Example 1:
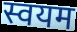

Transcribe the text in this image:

स्वयम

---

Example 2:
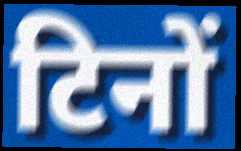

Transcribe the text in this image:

टिनों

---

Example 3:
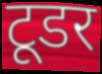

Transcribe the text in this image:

टूडर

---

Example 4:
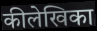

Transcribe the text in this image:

कीलेखिका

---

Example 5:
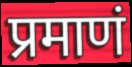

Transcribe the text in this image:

प्रमाणं